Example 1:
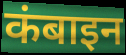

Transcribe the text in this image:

कंबाइन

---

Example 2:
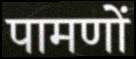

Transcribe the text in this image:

पामणों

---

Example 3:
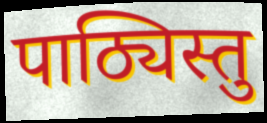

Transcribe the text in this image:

पाठ्यिस्तु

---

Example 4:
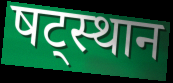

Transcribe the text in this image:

षट्स्थान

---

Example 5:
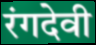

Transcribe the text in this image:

रंगदेवी